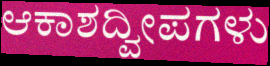
ಆಕಾಶದ್ವೀಪಗಳು